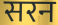
सरन